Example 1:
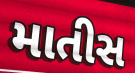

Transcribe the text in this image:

માતીસ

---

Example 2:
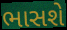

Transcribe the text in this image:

ભાસશે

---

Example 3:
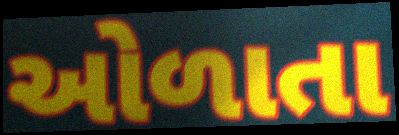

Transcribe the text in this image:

ઓળાતા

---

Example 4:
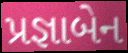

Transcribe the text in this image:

પ્રજ્ઞાબેન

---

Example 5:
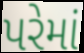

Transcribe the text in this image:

પરેમાં